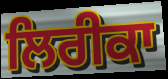
ਲਿਰੀਕਾ